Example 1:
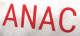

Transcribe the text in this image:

ANAC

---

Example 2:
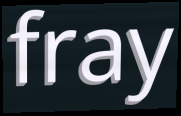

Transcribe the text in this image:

fray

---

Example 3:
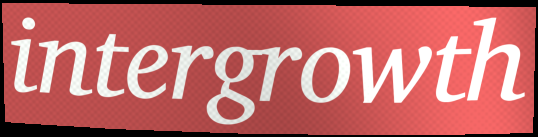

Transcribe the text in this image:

intergrowth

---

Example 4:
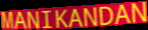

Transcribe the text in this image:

MANIKANDAN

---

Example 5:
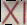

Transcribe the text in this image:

Xl